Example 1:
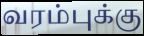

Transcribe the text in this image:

வரம்புக்கு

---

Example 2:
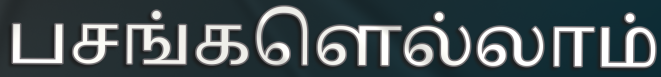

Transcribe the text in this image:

பசங்களெல்லாம்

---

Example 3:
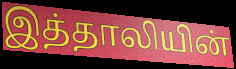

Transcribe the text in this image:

இத்தாலியின்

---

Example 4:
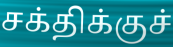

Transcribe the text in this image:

சக்திக்குச்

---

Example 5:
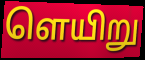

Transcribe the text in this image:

ளெயிறு